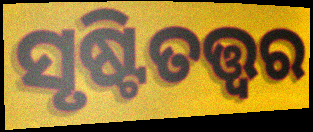
ସୃଷ୍ଟିତତ୍ତ୍ୱର